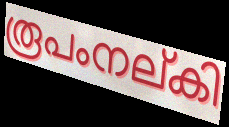
രൂപംനല്കി